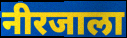
नीरजाला